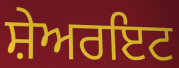
ਸ਼ੇਅਰਇਟ